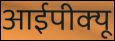
आईपीक्यू